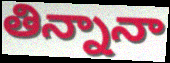
తిన్నానా